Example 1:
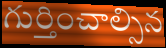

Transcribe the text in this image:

గుర్తించాల్సిన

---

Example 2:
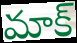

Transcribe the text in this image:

మాక్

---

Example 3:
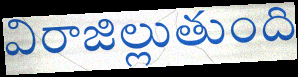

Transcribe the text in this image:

విరాజిల్లుతుంది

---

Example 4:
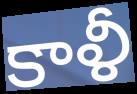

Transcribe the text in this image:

కాళీ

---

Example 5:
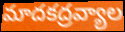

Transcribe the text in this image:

మాదకద్రవ్యాల